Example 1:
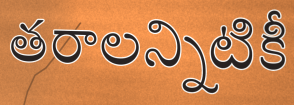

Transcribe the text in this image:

తరాలన్నిటికీ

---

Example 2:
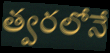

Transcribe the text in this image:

త్వరలోనే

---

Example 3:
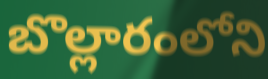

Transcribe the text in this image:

బొల్లారంలోని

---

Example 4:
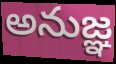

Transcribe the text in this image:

అనుజ్ఞ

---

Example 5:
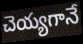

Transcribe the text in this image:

చెయ్యగానే